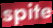
spite